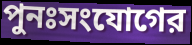
পুনঃসংযোগের